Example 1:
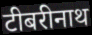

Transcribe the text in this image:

टीबरीनाथ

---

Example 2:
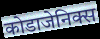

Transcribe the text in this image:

कोडाजेनिक्स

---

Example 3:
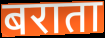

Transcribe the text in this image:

बराता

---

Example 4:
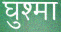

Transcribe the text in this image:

घुश्मा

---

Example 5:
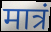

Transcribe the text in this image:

मात्रं